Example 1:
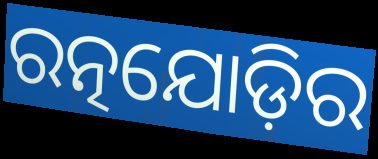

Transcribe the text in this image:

ରତ୍ନଯୋଡ଼ିର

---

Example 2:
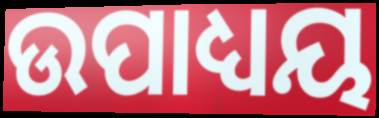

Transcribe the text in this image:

ଉପାଧ୍ୟୟ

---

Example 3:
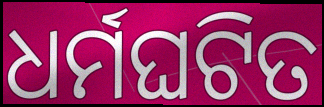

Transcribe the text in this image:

ଧର୍ମଘଟିତ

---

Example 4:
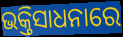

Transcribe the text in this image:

ଭକ୍ତିସାଧନାରେ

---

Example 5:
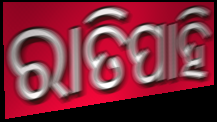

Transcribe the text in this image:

ରାତିପାହି